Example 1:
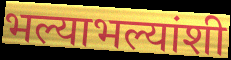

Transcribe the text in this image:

भल्याभल्यांशी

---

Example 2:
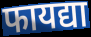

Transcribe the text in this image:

फायद्या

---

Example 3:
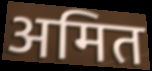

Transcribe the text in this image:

अमित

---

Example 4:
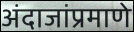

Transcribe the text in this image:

अंदाजांप्रमाणे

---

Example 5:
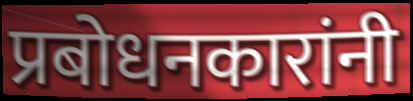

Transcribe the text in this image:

प्रबोधनकारांनी